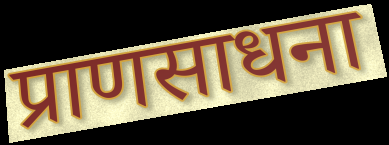
प्राणसाधना